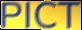
PICT